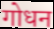
गोधन